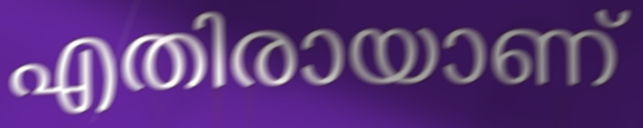
എതിരായാണ്